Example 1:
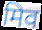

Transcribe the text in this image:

मिव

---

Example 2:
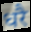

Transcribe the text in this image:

धरै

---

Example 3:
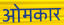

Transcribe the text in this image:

ओमकार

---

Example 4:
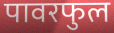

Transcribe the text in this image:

पावरफुल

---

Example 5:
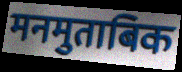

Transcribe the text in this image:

मनमुताबिक